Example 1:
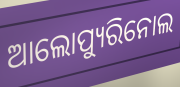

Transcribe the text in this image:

ଆଲୋପ୍ୟୁରିନୋଲ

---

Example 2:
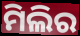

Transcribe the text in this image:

ମିଲିର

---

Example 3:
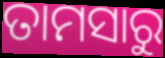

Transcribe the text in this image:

ତାମସାରୁ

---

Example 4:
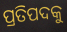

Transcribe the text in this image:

ପ୍ରତିପଦକୁ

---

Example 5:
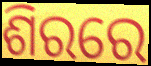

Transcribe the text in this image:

ଶିରରେ